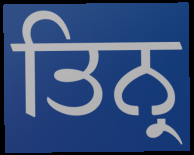
ਤਿਨ੍ਰ